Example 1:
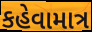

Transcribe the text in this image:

કહેવામાત્ર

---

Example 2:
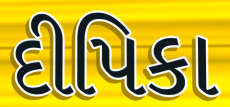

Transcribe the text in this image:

દીપિકા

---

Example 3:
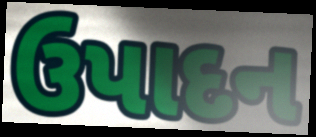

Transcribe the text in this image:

ઉપાદન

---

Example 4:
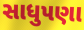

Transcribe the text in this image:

સાધુપણા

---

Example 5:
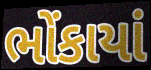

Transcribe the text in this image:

ભોંકાયાં